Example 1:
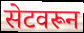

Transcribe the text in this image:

सेटवरून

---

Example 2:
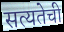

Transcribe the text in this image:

सत्यतेची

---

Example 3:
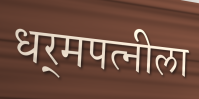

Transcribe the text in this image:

धर्मपत्नीला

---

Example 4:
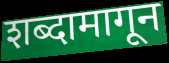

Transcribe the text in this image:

शब्दामागून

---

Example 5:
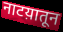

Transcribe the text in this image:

नाटय़ातून